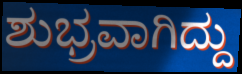
ಶುಭ್ರವಾಗಿದ್ದು